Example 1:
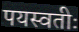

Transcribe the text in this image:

पयस्वतीः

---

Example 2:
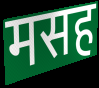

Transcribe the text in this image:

मसह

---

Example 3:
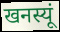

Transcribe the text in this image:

खनस्यूं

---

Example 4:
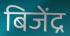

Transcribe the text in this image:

बिजेंद्र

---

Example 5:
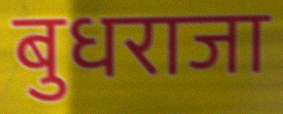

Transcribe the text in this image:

बुधराजा